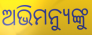
ଅଭିମନ୍ୟୁଙ୍କୁ